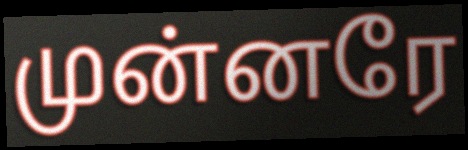
முன்னரே